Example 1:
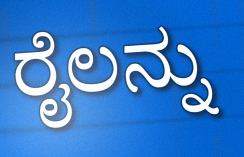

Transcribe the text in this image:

ರೈಲನ್ನು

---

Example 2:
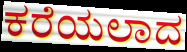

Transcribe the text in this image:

ಕರೆಯಲಾದ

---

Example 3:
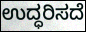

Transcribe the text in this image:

ಉದ್ಧರಿಸದೆ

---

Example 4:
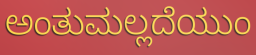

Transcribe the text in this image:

ಅಂತುಮಲ್ಲದೆಯುಂ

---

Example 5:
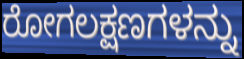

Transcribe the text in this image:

ರೋಗಲಕ್ಷಣಗಳನ್ನು